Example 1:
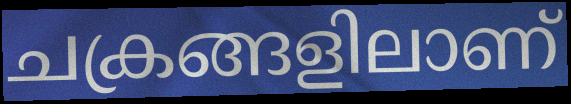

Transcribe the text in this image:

ചക്രങ്ങളിലാണ്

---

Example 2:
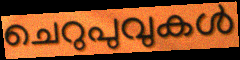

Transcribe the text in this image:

ചെറുപുവുകൾ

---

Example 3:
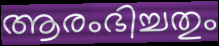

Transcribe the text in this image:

ആരംഭിച്ചതും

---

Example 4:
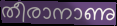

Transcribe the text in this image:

തീരാനാണു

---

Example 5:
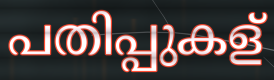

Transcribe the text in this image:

പതിപ്പുകള്